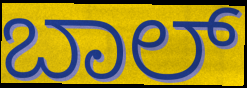
ಬಾಲ್